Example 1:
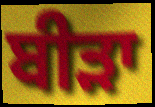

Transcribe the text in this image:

ਬੀੜਾ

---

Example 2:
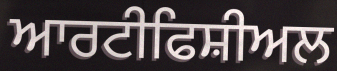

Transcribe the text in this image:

ਆਰਟੀਫਿਸ਼ੀਅਲ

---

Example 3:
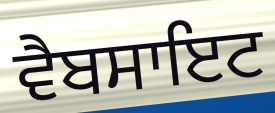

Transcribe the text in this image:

ਵੈਬਸਾਇਟ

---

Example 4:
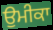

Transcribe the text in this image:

ਉਮੀਕਾ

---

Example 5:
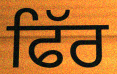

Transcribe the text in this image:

ਫਿੱਰ